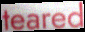
teared